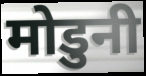
मोडुनी